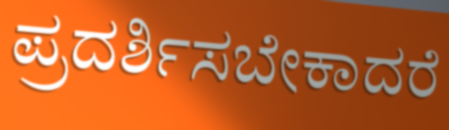
ಪ್ರದರ್ಶಿಸಬೇಕಾದರೆ